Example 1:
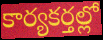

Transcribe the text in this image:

కార్యకర్తల్లో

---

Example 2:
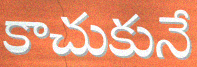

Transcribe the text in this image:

కాచుకునే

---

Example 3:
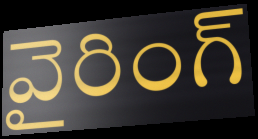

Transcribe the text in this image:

వైరింగ్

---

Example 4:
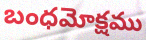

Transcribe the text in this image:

బంధమోక్షము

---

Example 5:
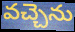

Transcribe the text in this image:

వచ్చెను